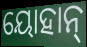
ୟୋହାନ୍